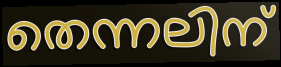
തെന്നലിന്